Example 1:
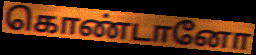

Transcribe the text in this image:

கொண்டானோ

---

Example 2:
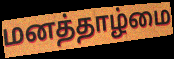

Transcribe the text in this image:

மனத்தாழ்மை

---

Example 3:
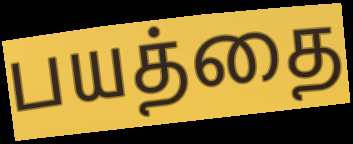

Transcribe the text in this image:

பயத்தை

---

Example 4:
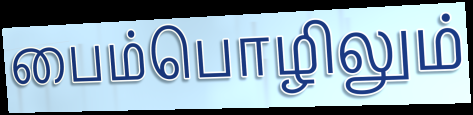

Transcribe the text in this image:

பைம்பொழிலும்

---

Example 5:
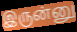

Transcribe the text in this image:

இருன்னு